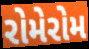
રોમેરોમ